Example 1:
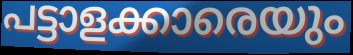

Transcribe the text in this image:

പട്ടാളക്കാരെയും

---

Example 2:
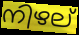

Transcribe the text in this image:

നിഴല്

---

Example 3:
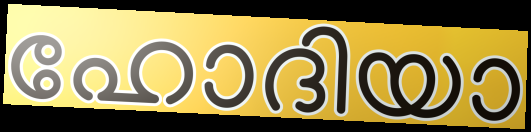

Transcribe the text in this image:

ഹോദിയാ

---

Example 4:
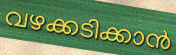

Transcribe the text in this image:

വഴക്കടിക്കാൻ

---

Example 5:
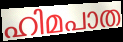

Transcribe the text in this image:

ഹിമപാത